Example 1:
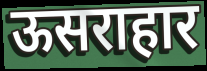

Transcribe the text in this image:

ऊसराहार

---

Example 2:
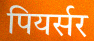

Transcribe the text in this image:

पियर्सर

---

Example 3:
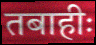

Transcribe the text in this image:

तबाहीः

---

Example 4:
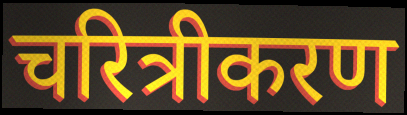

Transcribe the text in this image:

चरित्रीकरण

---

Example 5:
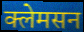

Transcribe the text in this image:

क्लेमसन